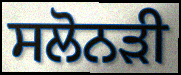
ਸਲੋਨੜੀ